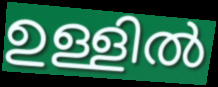
ഉള്ളിൽ